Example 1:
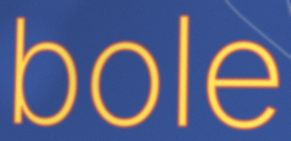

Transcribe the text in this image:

bole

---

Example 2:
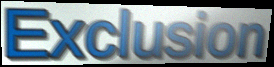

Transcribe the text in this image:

Exclusion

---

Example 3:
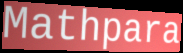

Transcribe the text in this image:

Mathpara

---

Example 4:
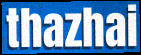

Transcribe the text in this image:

thazhai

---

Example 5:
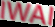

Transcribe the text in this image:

IWAI